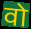
वो